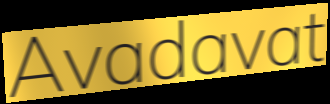
Avadavat